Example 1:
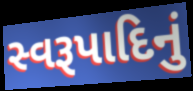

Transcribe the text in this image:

સ્વરૂપાદિનું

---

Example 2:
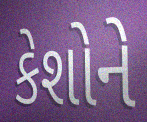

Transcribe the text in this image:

કેશોને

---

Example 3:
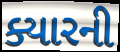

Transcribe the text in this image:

ક્યારની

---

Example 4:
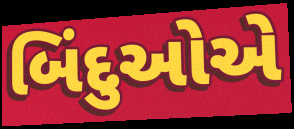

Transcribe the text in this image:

બિંદુઓએ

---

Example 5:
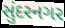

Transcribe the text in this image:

સુંદરનગર